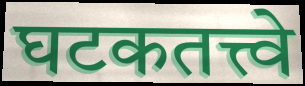
घटकतत्त्वे